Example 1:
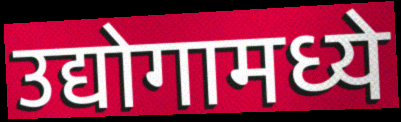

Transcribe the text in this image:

उद्योगामध्ये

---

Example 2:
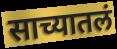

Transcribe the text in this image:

साच्यातलं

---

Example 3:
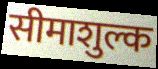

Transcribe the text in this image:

सीमाशुल्क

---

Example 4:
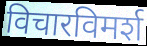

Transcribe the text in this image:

विचारविमर्श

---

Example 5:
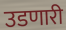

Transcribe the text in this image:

उडणारी